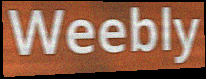
Weebly